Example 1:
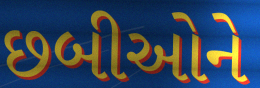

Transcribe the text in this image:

છબીઓને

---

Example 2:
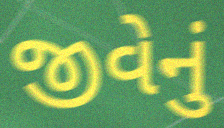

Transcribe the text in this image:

જીવેનું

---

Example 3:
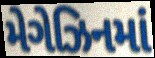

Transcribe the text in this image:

મેગેઝિનમાં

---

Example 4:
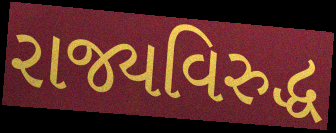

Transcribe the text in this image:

રાજ્યવિરુદ્ધ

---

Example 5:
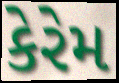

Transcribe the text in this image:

કેરેમ